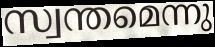
സ്വന്തമെന്നു